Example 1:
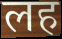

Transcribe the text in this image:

लह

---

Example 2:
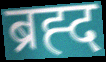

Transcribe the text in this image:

ब्रह्द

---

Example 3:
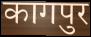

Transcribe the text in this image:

कागपुर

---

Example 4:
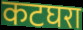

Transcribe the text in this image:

कटघरा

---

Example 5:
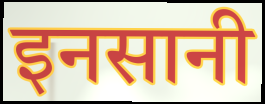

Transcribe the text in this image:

इनसानी